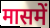
मासमें